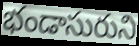
భండాసురుని